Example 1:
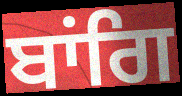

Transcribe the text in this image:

ਬਾਂਗਿ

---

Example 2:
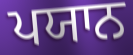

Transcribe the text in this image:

ਪਯਾਨ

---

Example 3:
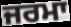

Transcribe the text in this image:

ਜਰਮਾ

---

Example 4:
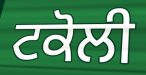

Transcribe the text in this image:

ਟਕੋਲੀ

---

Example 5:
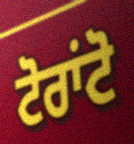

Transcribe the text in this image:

ਟੋਰਾਂਟੋ